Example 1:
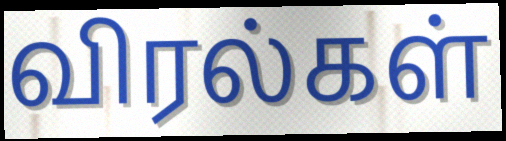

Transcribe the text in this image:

விரல்கள்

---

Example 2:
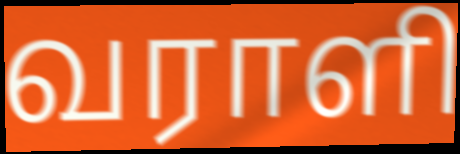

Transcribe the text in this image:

வராளி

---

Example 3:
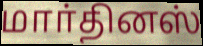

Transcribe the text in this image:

மார்தினஸ்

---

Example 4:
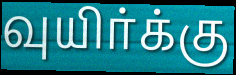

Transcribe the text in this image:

வுயிர்க்கு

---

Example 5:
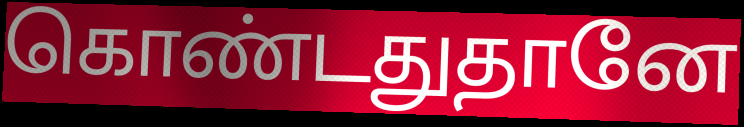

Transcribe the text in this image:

கொண்டதுதானே